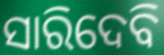
ସାରିଦେବି